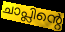
ചാപ്ലിന്റെ